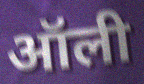
ऑली